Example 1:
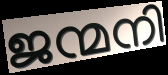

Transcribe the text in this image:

ജന്മനി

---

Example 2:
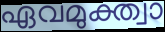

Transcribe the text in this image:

ഏവമുക്ത്വാ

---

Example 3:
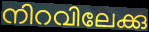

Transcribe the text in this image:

നിറവിലേക്കു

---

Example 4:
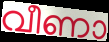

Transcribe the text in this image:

വീണാ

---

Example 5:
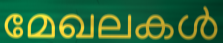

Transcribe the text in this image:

മേഖലകൾ